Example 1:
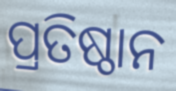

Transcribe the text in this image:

ପ୍ରତିଷ୍ଠାନ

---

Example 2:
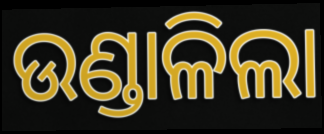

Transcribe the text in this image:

ଉଣ୍ଡାଳିଲା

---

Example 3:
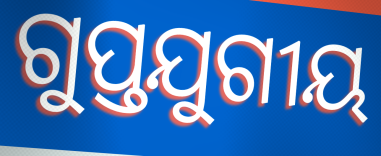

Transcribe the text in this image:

ଗୁପ୍ତଯୁଗୀୟ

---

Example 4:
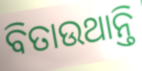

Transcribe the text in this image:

ବିତାଉଥାନ୍ତି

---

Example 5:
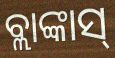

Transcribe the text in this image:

ବ୍ଲାଙ୍କାସ୍